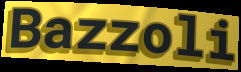
Bazzoli